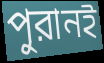
পুরানই